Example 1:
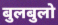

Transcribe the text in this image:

बुलबुलो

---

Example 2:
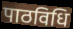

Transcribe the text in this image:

पाठविधि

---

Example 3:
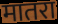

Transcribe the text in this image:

मातरा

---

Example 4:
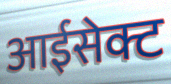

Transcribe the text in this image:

आईसेक्ट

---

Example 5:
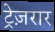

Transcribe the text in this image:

ट्रेज़रार